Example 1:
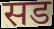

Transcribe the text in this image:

सड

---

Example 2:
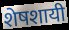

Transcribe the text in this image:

शेषशायी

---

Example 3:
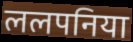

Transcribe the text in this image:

ललपनिया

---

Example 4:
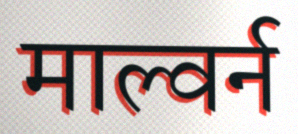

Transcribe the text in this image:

माल्वर्न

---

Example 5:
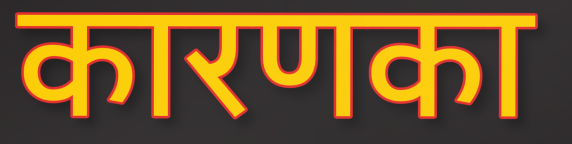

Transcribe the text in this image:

कारणका